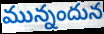
మున్నందున